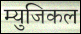
म्युजिकल